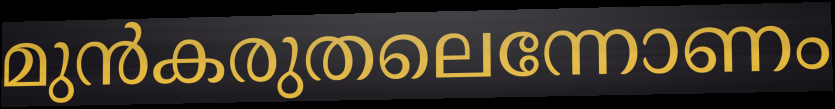
മുൻകരുതലെന്നോണം